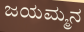
ಜಯಮ್ಮನ